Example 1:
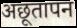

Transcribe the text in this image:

अछूतापन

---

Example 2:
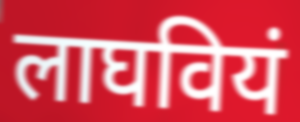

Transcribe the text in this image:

लाघवियं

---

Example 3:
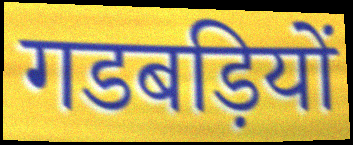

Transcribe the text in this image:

गडबड़ियों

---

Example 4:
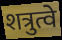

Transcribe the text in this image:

शत्रुत्वे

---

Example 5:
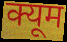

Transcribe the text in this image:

क्यूम